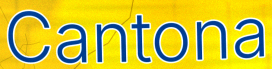
Cantona